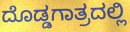
ದೊಡ್ಡಗಾತ್ರದಲ್ಲಿ